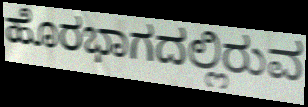
ಹೊರಭಾಗದಲ್ಲಿರುವ